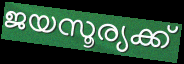
ജയസൂര്യക്ക്